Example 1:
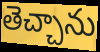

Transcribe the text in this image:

తెచ్చాను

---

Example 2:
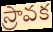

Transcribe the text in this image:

స్రావక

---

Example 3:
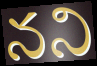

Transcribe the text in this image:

నని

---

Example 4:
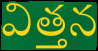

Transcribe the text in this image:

విత్తన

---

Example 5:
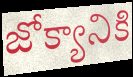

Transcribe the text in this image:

జోక్యానికి